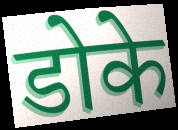
डोके